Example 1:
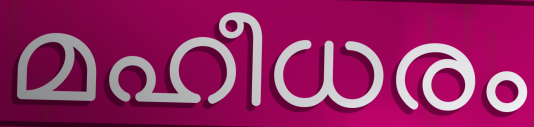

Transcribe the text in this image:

മഹീധരം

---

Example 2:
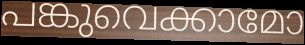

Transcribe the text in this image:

പങ്കുവെക്കാമോ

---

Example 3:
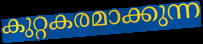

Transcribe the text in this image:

കുറ്റകരമാക്കുന്ന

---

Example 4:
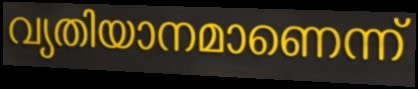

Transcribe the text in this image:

വ്യതിയാനമാണെന്ന്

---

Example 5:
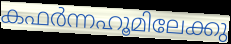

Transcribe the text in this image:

കഫർന്നഹൂമിലേക്കു